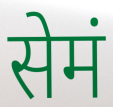
सेमं